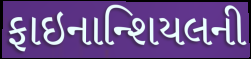
ફાઇનાન્શિયલની